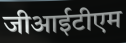
जीआईटीएम